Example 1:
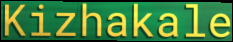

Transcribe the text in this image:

Kizhakale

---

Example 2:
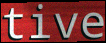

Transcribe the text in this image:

tive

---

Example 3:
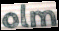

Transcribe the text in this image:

olm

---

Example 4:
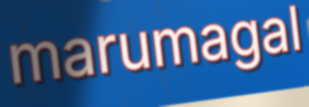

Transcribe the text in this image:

marumagal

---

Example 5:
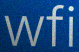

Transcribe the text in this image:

wfi